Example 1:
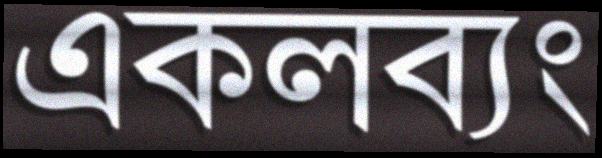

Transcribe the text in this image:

একলব্যং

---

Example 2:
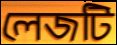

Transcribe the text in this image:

লেজটি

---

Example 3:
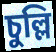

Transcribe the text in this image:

চুল্লি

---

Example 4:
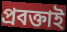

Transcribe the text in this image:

প্রবক্তাই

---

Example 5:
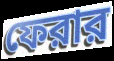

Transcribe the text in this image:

ফেরার